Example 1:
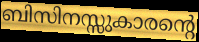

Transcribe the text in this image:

ബിസിനസ്സുകാരന്റെ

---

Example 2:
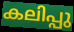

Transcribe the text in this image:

കലിപ്പു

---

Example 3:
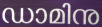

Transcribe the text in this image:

ഡാമിനു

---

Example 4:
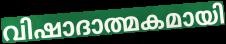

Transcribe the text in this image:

വിഷാദാത്മകമായി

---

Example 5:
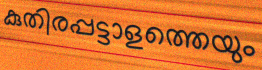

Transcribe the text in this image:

കുതിരപ്പട്ടാളത്തെയും